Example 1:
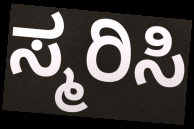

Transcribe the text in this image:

ಸ್ಮರಿಸಿ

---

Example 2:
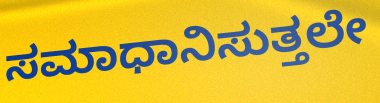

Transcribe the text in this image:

ಸಮಾಧಾನಿಸುತ್ತಲೇ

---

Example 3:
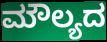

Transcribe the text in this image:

ಮೌಲ್ಯದ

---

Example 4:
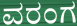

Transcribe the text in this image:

ವರಂಗ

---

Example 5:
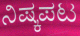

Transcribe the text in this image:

ನಿಷ್ಕಪಟ